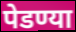
पेडण्या